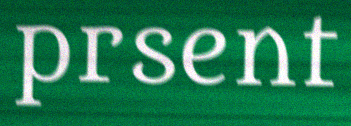
prsent